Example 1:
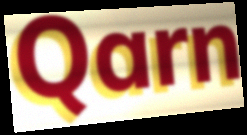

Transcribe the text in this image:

Qarn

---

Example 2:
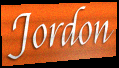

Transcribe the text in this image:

Jordon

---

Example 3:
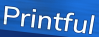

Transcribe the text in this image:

Printful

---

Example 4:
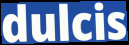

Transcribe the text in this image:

dulcis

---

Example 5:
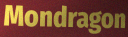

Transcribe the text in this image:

Mondragon